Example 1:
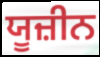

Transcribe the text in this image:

ਯੂਜ਼ੀਨ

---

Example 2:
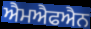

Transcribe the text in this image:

ਐਮਐਫਐਨ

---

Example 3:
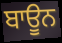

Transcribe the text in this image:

ਬਾਊਨ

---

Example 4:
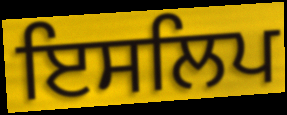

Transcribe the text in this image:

ਇਸਲਿਪ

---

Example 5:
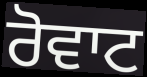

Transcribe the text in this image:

ਰੋਵਾਟ